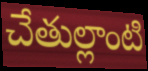
చేతుల్లాంటి